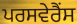
ਪਰਸਵੇਰੈਂਸ